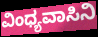
ವಿಂಧ್ಯವಾಸಿನಿ